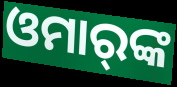
ଓମାର୍‌ଙ୍କ